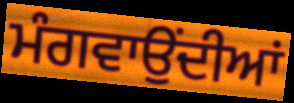
ਮੰਗਵਾਉਂਦੀਆਂ